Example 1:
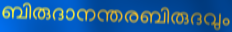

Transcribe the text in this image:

ബിരുദാനന്തരബിരുദവും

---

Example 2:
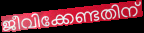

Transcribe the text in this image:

ജീവിക്കേണ്ടതിന്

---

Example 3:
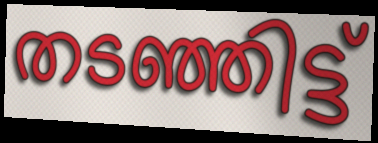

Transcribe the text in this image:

തടഞ്ഞിട്ട്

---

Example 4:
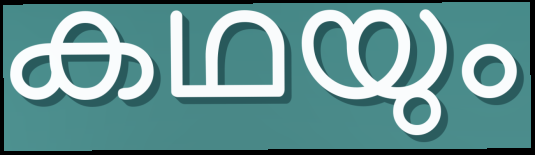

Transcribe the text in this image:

കഥയും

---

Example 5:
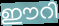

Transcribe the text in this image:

ഈറി